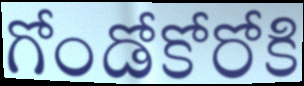
గోండోకోరోకి